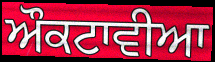
ਔਕਟਾਵੀਆ